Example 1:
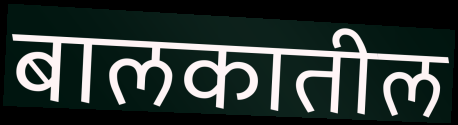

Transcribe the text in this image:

बालकातील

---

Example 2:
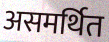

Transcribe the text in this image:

असमर्थित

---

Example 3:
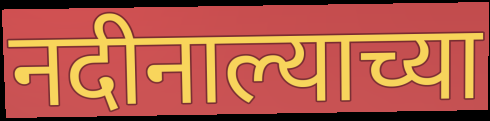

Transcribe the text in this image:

नदीनाल्याच्या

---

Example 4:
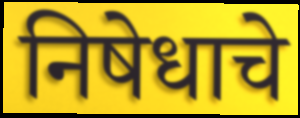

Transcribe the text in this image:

निषेधाचे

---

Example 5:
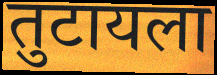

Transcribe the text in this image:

तुटायला